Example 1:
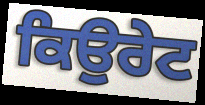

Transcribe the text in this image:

ਕਿਉਰੇਟ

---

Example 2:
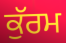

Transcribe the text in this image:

ਕੁੱਰਮ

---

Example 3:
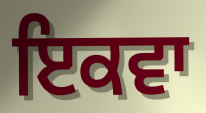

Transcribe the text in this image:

ਇਕਵਾ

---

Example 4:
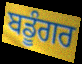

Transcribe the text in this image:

ਬਡੂੰਗਰ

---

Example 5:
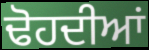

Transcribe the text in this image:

ਢੋਹਦੀਆਂ